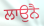
ਲਾਉਨੈ